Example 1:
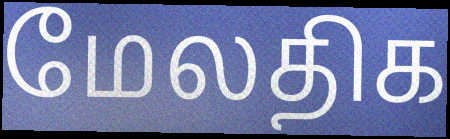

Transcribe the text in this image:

மேலதிக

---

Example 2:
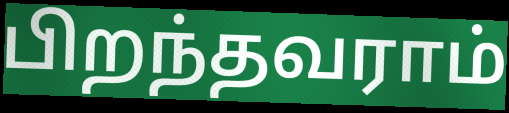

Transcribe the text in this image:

பிறந்தவராம்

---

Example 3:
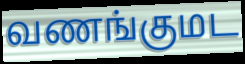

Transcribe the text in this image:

வணங்குமட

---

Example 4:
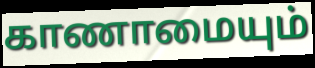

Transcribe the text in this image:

காணாமையும்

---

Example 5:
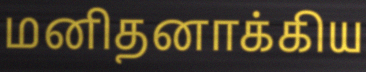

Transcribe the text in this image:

மனிதனாக்கிய